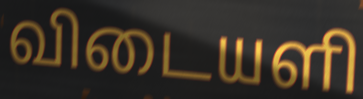
விடையளி